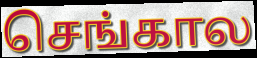
செங்கால